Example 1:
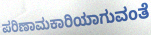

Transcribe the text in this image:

ಪರಿಣಾಮಕಾರಿಯಾಗುವಂತೆ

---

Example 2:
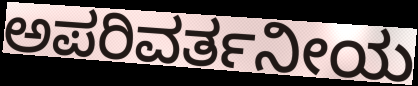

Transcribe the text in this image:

ಅಪರಿವರ್ತನೀಯ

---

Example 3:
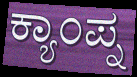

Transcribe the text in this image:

ಕ್ಯಾಂಪ್ನ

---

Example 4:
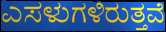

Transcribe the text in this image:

ಎಸಳುಗಳಿರುತ್ತವೆ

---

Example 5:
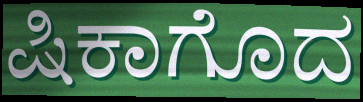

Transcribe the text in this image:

ಷಿಕಾಗೊದ